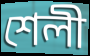
শেলী